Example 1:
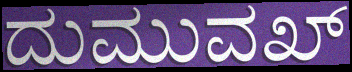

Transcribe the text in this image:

ದುಮುವಖ್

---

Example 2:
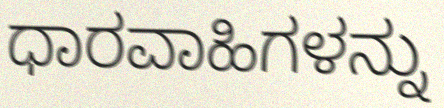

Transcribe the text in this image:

ಧಾರವಾಹಿಗಳನ್ನು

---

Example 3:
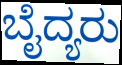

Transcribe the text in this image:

ಬೈದ್ಯರು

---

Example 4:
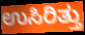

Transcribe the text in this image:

ಉಸಿರಿತ್ತು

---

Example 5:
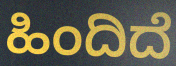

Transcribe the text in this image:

ಹಿಂದಿದೆ